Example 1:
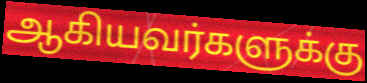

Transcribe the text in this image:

ஆகியவர்களுக்கு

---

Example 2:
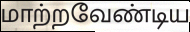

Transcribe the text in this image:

மாற்றவேண்டிய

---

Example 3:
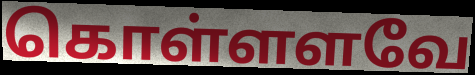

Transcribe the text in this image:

கொள்ளளவே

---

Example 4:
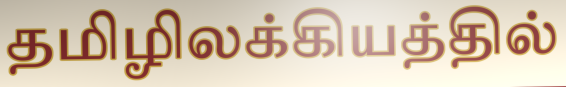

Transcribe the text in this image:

தமிழிலக்கியத்தில்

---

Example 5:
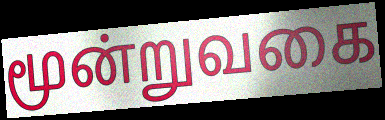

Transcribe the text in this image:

மூன்றுவகை